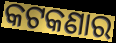
କଟକଣାର